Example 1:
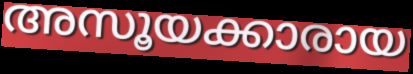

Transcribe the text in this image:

അസൂയക്കാരായ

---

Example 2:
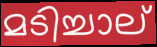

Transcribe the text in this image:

മടിച്ചാല്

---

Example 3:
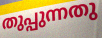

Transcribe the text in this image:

തുപ്പുന്നതു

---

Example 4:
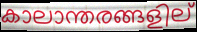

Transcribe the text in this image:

കാലാന്തരങ്ങളില്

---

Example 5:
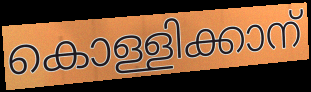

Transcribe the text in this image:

കൊള്ളിക്കാന്